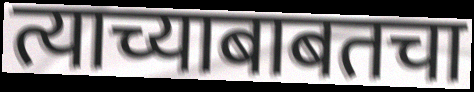
त्याच्याबाबतचा